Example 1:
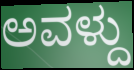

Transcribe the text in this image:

ಅವಳ್ದು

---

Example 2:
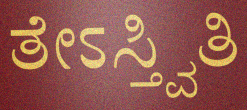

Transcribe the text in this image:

ತೇಽಸ್ತ್ವಿತಿ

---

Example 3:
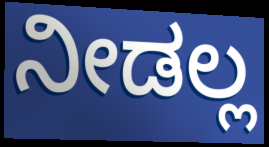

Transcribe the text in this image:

ನೀಡಲ್ಲ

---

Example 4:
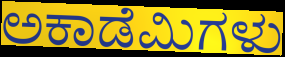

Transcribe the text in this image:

ಅಕಾಡೆಮಿಗಳು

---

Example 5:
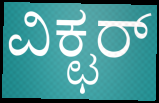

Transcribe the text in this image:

ವಿಕ್ಟರ್